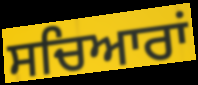
ਸਚਿਆਰਾਂ